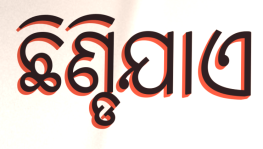
ଛିଣ୍ଡିଯାଏ